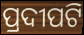
ପ୍ରଦୀପଟି